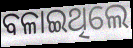
ବଳାଇଥିଲେ